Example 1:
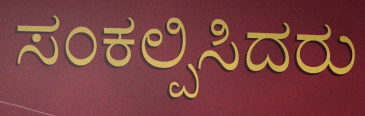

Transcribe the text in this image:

ಸಂಕಲ್ಪಿಸಿದರು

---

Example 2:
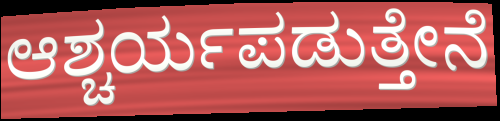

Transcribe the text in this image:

ಆಶ್ಚರ್ಯಪಡುತ್ತೇನೆ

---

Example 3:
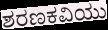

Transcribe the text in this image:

ಶರಣಕವಿಯು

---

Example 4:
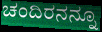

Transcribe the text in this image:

ಚಂದಿರನನ್ನೂ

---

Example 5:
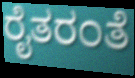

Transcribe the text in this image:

ರೈತರಂತೆ